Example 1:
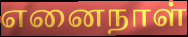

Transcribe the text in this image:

எனைநாள்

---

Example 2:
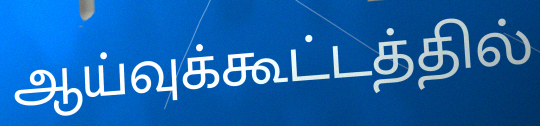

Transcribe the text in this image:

ஆய்வுக்கூட்டத்தில்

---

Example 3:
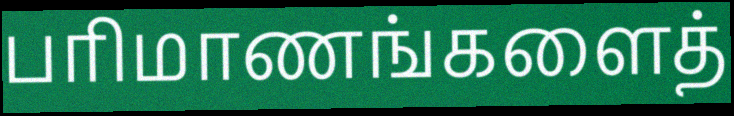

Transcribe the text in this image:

பரிமாணங்களைத்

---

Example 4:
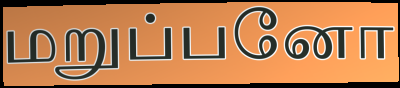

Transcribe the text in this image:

மறுப்பனோ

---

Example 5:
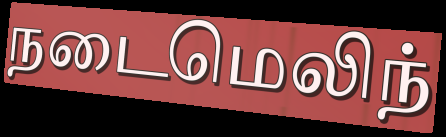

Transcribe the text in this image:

நடைமெலிந்